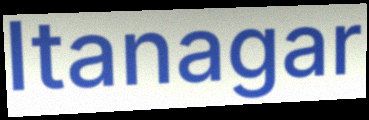
Itanagar